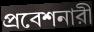
প্রবেশনারী